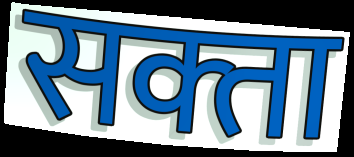
सक्‍ता